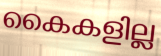
കൈകളില്ല